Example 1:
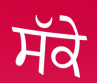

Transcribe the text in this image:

ਸੱਕੇ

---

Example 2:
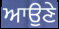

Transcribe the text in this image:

ਆਉਣੇ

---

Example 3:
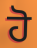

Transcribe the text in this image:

ਹੋ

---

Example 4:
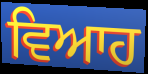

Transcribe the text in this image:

ਵਿਆਹ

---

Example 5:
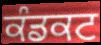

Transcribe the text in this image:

ਕੰਡਕਟ